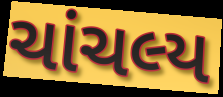
ચાંચલ્ય